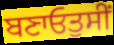
ਬਣਾਓਤੁਸੀਂ